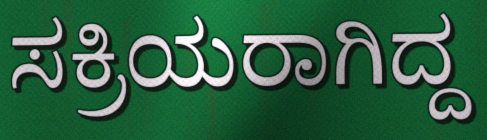
ಸಕ್ರಿಯರಾಗಿದ್ದ